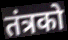
तंत्रको